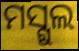
ମସ୍ଗୁଲ